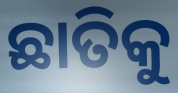
ଛାତିକୁ